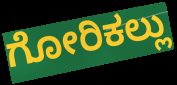
ಗೋರಿಕಲ್ಲು